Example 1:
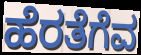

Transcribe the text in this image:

ಹೆರತೆಗೆವ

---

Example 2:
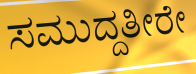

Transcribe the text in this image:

ಸಮುದ್ದತೀರೇ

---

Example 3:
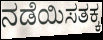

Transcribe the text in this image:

ನಡೆಯಿಸತಕ್ಕ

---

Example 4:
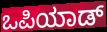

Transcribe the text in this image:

ಒಪಿಯಾಡ್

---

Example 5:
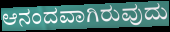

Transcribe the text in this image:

ಆನಂದವಾಗಿರುವುದು